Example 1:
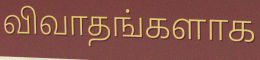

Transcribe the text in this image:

விவாதங்களாக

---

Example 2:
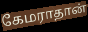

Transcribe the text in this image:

கேமராதான்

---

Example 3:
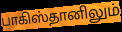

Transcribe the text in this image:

பாகிஸ்தானிலும்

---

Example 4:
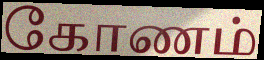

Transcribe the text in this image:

கோணம்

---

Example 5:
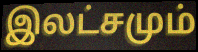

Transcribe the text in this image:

இலட்சமும்